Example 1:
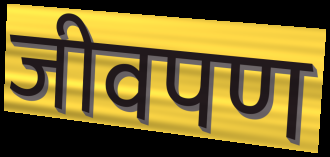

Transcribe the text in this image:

जीवपण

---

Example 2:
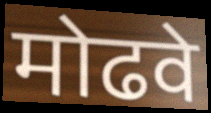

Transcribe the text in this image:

मोढवे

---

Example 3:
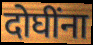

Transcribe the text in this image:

दोघींना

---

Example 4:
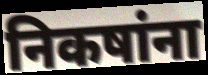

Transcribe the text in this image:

निकषांना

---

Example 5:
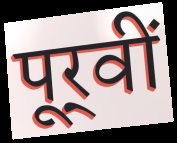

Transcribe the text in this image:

पूर्वीं